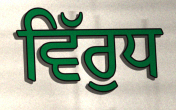
ਵਿੱਰੁਧ